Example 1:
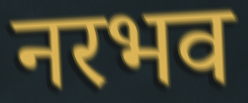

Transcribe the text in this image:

नरभव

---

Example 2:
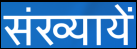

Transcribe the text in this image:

संख्यायें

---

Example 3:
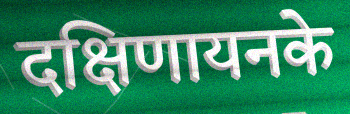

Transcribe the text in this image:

दक्षिणायनके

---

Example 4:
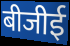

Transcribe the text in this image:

बीजीई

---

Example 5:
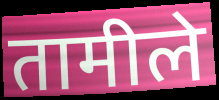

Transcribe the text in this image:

तामीले